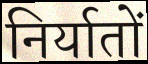
निर्यातों